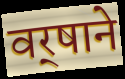
वर्षाने